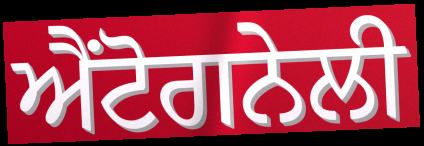
ਐਂਟੋਗਨੇਲੀ